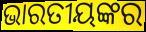
ଭାରତୀୟଙ୍କର